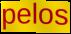
pelos